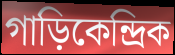
গাড়িকেন্দ্রিক